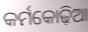
କର୍ମକୋଢ଼ିଆ